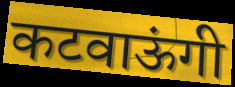
कटवाऊंगी